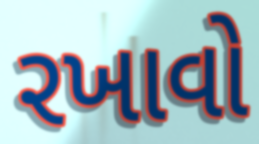
રખાવો